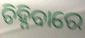
ଚିହ୍ନିବାରେ